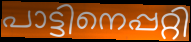
പാട്ടിനെപ്പറ്റി